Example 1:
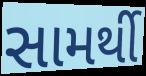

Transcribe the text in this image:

સામર્થી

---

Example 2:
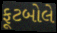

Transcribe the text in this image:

ફૂટબોલે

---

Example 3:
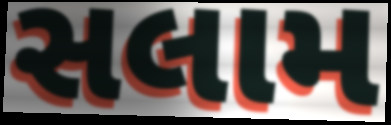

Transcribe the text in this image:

સલામ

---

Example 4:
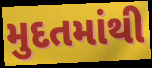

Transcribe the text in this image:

મુદતમાંથી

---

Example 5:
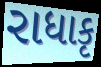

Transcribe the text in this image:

રાધાકૃ